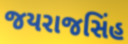
જયરાજસિંહ